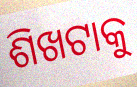
ଶିଖଟାକୁ